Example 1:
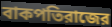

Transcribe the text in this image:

বাকপতিরাজের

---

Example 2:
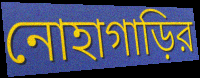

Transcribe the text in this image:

নোহাগাড়ির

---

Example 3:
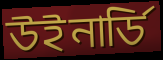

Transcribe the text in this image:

উইনার্ডি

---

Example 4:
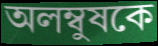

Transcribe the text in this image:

অলম্বুষকে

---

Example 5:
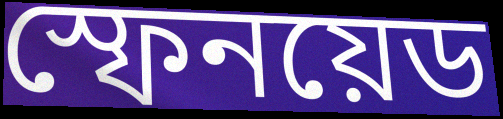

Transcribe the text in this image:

স্ফেনয়েড